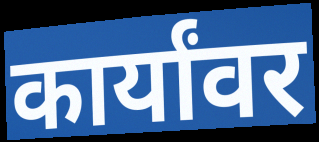
कार्यांवर